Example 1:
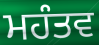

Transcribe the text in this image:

ਮਹੰਤਵ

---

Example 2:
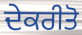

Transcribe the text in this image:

ਦੇਕਰੀਤੋ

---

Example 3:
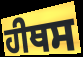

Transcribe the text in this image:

ਹੀਥਸ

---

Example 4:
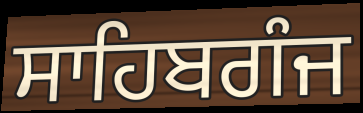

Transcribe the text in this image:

ਸਾਹਿਬਗੰਜ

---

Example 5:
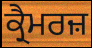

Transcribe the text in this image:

ਕ੍ਰੈਮਰਜ਼